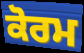
ਕੋਰਮ